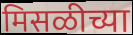
मिसळीच्या